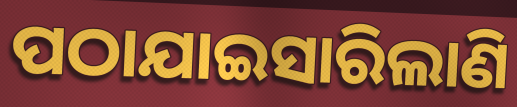
ପଠାଯାଇସାରିଲାଣି